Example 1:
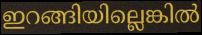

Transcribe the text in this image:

ഇറങ്ങിയില്ലെങ്കിൽ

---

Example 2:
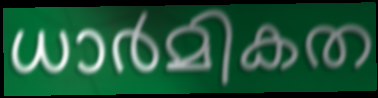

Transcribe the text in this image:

ധാർമികത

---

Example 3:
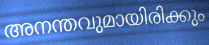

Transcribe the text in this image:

അനന്തവുമായിരിക്കും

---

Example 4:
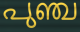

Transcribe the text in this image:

പുഞ്ച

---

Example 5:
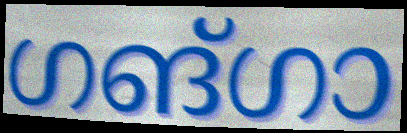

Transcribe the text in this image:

ഗങ്ഗാ